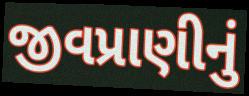
જીવપ્રાણીનું